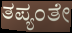
ತಪ್ಯಂತೇ